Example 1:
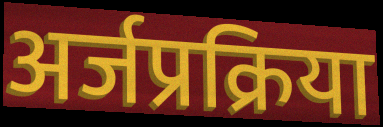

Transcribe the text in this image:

अर्जप्रक्रिया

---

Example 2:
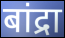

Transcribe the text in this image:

बांद्रा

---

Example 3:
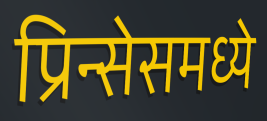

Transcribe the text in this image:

प्रिन्सेसमध्ये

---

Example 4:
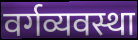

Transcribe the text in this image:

वर्गव्यवस्था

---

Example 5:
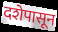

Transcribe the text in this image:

दशेपासून